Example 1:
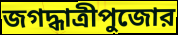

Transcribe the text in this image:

জগদ্ধাত্রীপুজোর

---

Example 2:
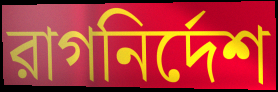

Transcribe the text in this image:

রাগনির্দেশ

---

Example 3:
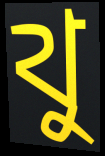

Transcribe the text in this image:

থু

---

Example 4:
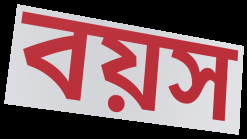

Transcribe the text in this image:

বয়স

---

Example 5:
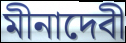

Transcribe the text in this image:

মীনাদেবী